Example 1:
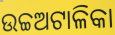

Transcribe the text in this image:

ଉଚ୍ଚଅଟାଳିକା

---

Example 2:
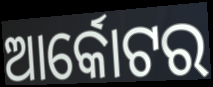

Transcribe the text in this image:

ଆର୍କୋଟର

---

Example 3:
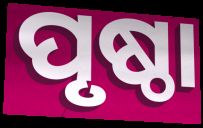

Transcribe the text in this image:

ପୃଷ୍ଠା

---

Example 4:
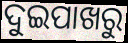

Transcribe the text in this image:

ଦୁଇପାଖରୁ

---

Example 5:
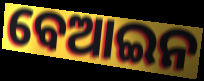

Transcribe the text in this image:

ବେଆଇନ